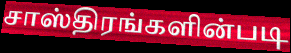
சாஸ்திரங்களின்படி